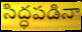
సిద్ధపడినా